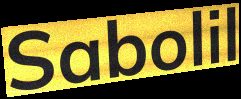
Sabolil